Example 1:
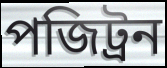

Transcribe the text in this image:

পজিট্রন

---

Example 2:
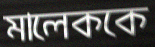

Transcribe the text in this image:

মালেককে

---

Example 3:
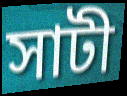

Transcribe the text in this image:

সাটী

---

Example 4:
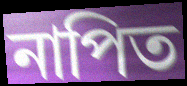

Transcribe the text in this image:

নাপিত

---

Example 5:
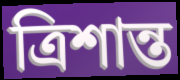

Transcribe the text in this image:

ত্রিশান্ত